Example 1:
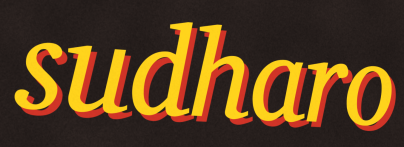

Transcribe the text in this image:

sudharo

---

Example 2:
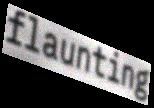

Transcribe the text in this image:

flaunting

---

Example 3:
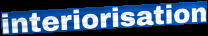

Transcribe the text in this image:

interiorisation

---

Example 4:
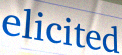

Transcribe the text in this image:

elicited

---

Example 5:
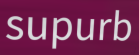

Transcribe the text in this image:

supurb